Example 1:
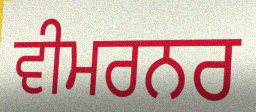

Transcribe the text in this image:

ਵੀਮਰਨਰ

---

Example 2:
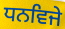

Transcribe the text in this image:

ਧਨਵਿਜੇ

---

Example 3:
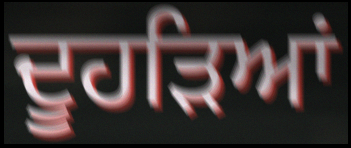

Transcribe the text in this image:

ਦੂਹੜਿਆਂ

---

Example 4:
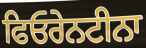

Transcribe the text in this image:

ਫਿਓਰੇਨਟੀਨਾ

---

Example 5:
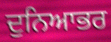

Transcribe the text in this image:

ਦੁਨਿਆਭਰ